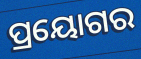
ପ୍ରୟୋଗର